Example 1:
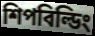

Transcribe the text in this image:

শিপবিল্ডিং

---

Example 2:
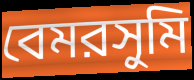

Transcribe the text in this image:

বেমরসুমি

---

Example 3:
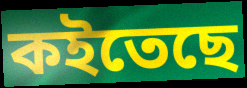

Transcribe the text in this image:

কইতেছে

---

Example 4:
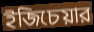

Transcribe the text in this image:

ইজিচেয়ার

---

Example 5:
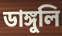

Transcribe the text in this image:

ডাঙ্গুলি